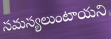
సమస్యలుంటాయని